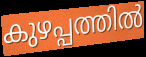
കുഴപ്പത്തിൽ